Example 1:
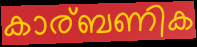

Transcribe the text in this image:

കാര്ബണിക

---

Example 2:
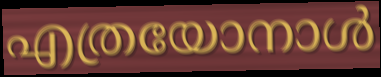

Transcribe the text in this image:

എത്രയോനാൾ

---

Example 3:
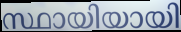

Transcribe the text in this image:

സ്ഥായിയായി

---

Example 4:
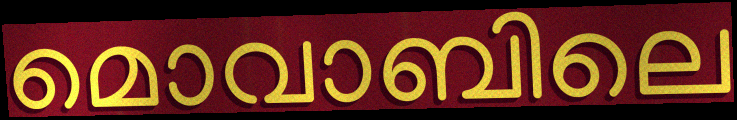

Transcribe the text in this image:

മൊവാബിലെ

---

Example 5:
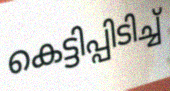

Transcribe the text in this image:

കെട്ടിപ്പിടിച്ച്